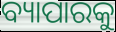
ବ୍ୟାପାରକୁ